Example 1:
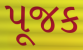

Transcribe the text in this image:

પૂજક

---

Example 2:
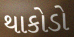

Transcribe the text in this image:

થાકોડો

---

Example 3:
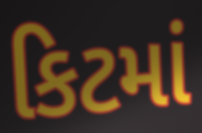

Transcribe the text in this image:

કિટમાં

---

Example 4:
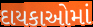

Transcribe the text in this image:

દાયકાઓમાં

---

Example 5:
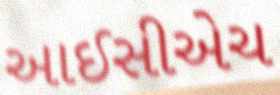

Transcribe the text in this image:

આઈસીએચ